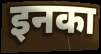
इनका